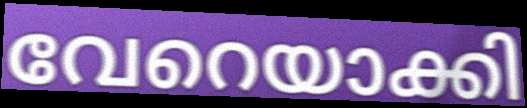
വേറെയാക്കി